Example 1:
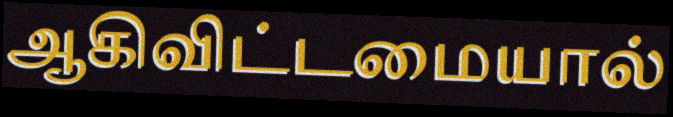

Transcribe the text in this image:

ஆகிவிட்டமையால்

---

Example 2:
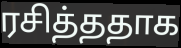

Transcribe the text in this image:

ரசித்ததாக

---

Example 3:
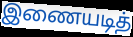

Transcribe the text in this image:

இணையடித்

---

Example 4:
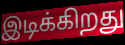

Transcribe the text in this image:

இடிக்கிறது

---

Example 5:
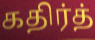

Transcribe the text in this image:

கதிர்த்